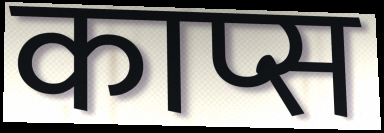
काप्स